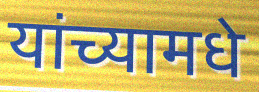
यांच्यामधे